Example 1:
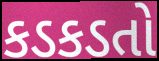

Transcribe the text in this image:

કડકડતો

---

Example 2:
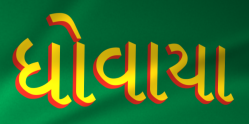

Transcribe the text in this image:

ધોવાયા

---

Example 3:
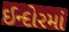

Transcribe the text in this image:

ઈન્દોરમાં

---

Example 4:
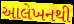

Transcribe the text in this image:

આલેખનથી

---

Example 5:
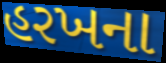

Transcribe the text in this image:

હરખના